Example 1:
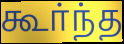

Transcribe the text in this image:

கூர்ந்த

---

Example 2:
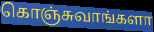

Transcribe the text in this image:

கொஞ்சுவாங்களா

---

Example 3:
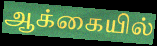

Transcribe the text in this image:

ஆக்கையில்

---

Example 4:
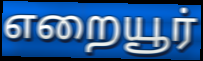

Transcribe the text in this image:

எறையூர்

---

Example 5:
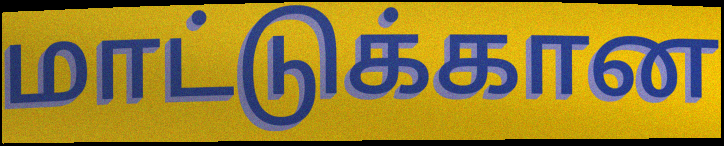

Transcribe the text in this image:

மாட்டுக்கான